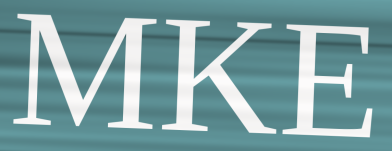
MKE